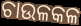
ଚାଉଳକଳ